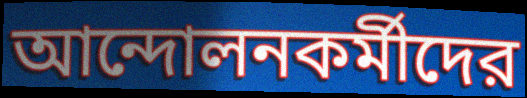
আন্দোলনকর্মীদের